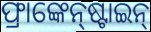
ଫ୍ରାଙ୍କେନ୍‌ଷ୍ଟାଇନ୍